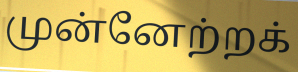
முன்னேற்றக்